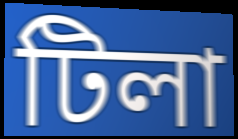
টিলা